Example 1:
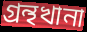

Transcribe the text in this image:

গ্রন্থখানা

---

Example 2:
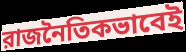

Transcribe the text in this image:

রাজনৈতিকভাবেই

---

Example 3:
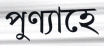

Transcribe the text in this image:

পুণ্যাহে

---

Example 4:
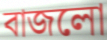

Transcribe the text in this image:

বাজলো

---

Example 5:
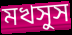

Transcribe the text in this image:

মখসুস